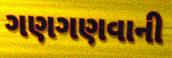
ગણગણવાની